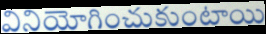
వినియోగించుకుంటాయి